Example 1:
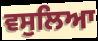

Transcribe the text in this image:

ਵਸੁਲਿਆ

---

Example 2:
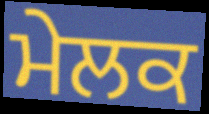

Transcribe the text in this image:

ਮੇਲਕ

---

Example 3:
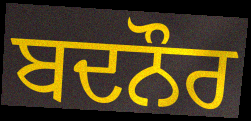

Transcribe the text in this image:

ਬਦਨੌਰ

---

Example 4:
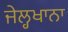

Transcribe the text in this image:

ਜੇਲ੍ਹਖਾਨਾ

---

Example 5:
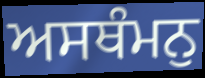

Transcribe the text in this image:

ਅਸਥੰਮਨੁ